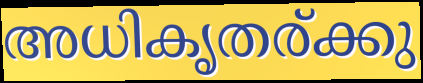
അധികൃതര്ക്കു